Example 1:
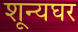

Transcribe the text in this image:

शून्यघर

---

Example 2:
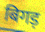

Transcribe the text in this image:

बिगड़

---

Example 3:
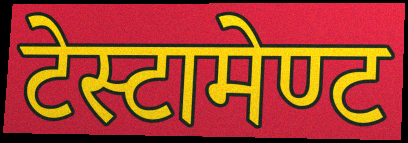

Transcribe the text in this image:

टेस्टामेण्ट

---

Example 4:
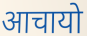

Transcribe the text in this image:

आचायो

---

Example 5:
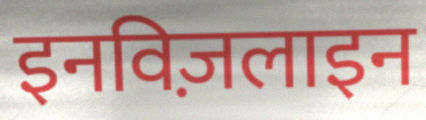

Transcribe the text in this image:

इनविज़लाइन